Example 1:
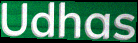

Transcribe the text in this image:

Udhas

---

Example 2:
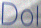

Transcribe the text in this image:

Dol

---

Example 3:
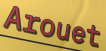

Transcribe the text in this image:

Arouet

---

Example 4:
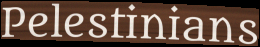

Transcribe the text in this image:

Pelestinians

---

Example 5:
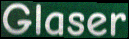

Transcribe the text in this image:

Glaser